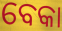
ବେକା